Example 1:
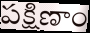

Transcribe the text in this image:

పక్షిణాం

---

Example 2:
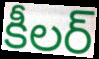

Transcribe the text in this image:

కీలర్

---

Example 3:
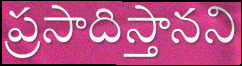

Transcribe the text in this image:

ప్రసాదిస్తానని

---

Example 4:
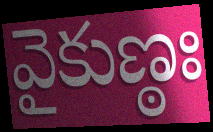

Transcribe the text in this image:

వైకుణ్ఠః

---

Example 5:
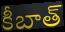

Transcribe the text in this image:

కీబాత్